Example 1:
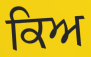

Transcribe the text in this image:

ਕਿਅ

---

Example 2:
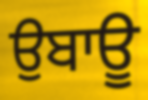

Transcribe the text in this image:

ਉਬਾਊ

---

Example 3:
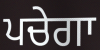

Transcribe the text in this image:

ਪਚੇਗਾ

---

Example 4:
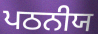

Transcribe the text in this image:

ਪਠਨੀਯ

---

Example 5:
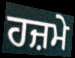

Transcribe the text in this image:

ਹਜ਼ਮੇ